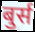
बुर्स